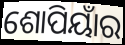
ଶୋପିୟାଁର